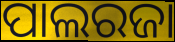
ପାଲରଜା